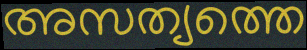
അസത്യത്തെ